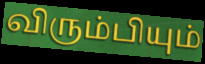
விரும்பியும்